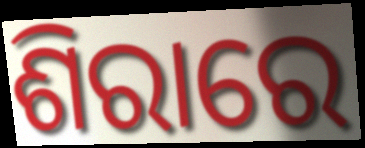
ଶିରାରେ